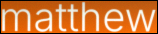
matthew